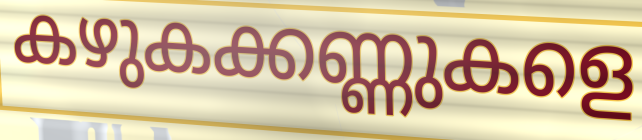
കഴുകക്കണ്ണുകളെ